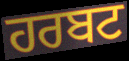
ਹਰਬਟ